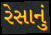
રેસાનું